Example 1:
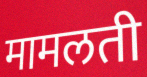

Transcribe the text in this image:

मामलती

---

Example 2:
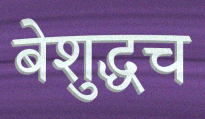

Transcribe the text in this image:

बेशुद्धच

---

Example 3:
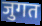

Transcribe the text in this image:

जुगत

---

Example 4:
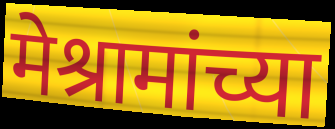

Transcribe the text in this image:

मेश्रामांच्या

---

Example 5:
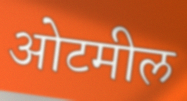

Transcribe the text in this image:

ओटमील